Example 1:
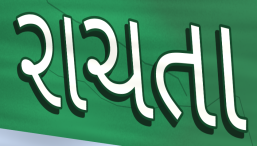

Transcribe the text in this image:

રાચતા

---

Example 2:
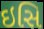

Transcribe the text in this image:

ઇસિ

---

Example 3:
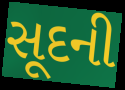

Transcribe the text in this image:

સૂદની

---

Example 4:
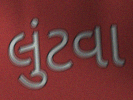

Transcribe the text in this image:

લુંટવા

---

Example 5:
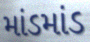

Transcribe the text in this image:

માંડમાંડ